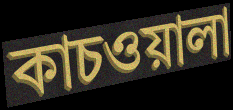
কাচওয়ালা